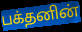
பக்தனின்